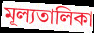
মূল্যতালিকা